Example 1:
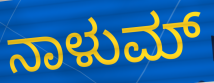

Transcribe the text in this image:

ನಾಳುಮ್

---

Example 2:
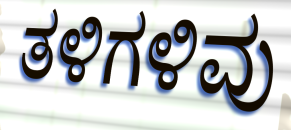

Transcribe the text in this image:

ತಳಿಗಳಿವು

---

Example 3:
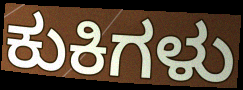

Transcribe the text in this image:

ಕುಕಿಗಳು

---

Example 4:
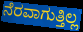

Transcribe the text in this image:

ನೆರವಾಗುತ್ತಿಲ್ಲ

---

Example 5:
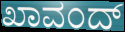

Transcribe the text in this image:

ಖಾವಂದ್